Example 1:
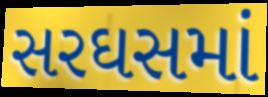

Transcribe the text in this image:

સરઘસમાં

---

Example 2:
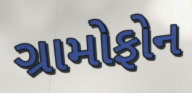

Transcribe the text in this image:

ગ્રામોફોન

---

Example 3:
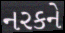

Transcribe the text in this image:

નરકને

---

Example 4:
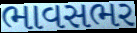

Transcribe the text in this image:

ભાવસભર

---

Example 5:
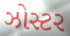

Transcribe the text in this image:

ઝોસ્ટર